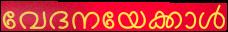
വേദനയേക്കാൾ